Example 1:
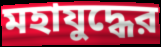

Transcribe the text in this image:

মহাযুদ্ধের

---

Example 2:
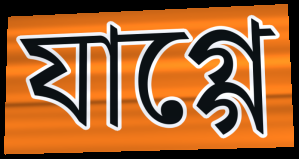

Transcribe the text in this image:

যাগ্গে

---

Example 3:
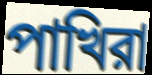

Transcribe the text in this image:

পাখিরা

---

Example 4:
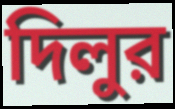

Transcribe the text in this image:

দিলুর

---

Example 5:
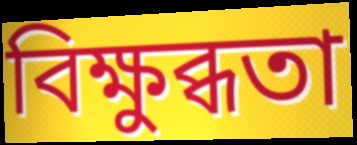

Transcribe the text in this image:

বিক্ষুব্ধতা